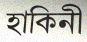
হাকিনী